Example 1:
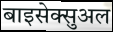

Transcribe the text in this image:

बाइसेक्सुअल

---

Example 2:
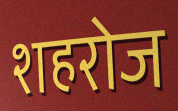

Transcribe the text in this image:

शहरोज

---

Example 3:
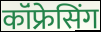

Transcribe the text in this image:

कॉंफ्रेसिंग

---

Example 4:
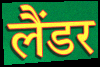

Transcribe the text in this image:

लैंडर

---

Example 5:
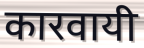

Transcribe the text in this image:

कारवायी